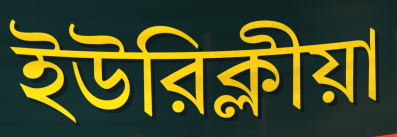
ইউরিক্লীয়া